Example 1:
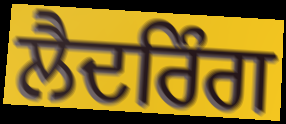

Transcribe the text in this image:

ਲੈਦਰਿੰਗ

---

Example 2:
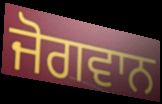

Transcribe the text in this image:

ਜੋਗਵਾਨ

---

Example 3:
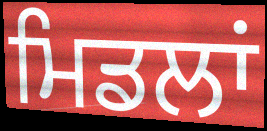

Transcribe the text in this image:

ਮਿਡਲਾਂ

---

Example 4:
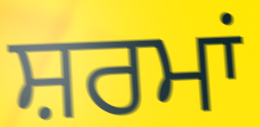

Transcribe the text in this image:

ਸ਼ਰਮਾਂ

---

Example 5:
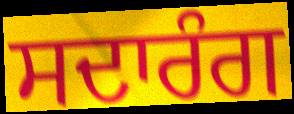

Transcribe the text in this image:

ਸਦਾਰੰਗ